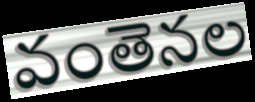
వంతెనల